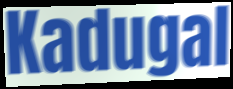
Kadugal